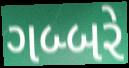
ગબ્બરે